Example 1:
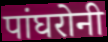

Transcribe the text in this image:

पांघरोनी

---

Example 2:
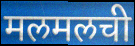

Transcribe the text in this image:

मलमलची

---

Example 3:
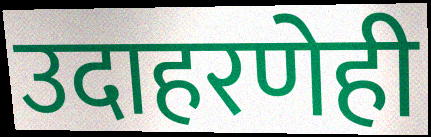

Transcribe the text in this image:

उदाहरणेही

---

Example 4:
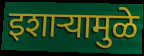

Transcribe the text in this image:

इशाऱ्यामुळे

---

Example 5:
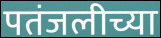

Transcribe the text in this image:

पतंजलीच्या